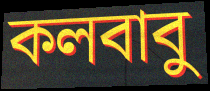
কলবাবু